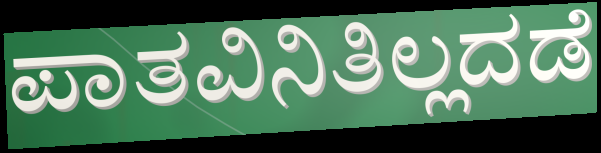
ಪಾತವಿನಿತಿಲ್ಲದಡೆ